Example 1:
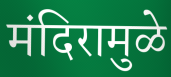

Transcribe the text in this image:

मंदिरामुळे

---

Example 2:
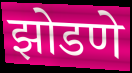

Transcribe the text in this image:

झोडणे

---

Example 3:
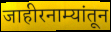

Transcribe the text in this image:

जाहीरनाम्यांतून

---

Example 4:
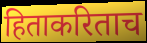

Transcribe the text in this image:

हिताकरिताच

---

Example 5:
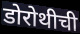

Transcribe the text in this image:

डोरोथीची